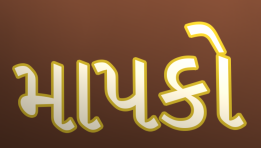
માપકો